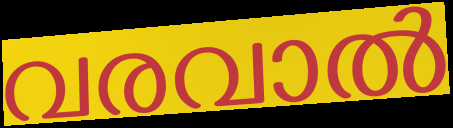
വരവാൽ